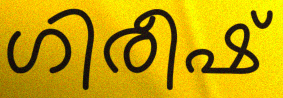
ഗിരീഷ്